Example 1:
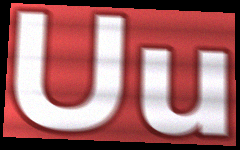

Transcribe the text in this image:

Uu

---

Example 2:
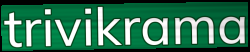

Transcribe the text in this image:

trivikrama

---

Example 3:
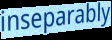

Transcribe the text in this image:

inseparably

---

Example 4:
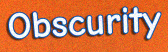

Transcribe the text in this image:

Obscurity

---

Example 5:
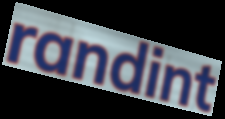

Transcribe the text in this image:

randint